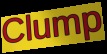
Clump